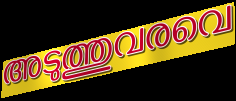
അടുത്തുവരവെ